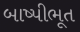
બાષ્પીભૂત